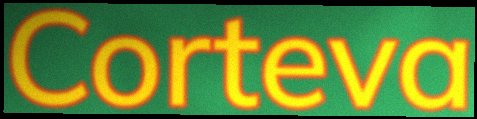
Corteva